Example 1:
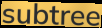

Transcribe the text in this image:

subtree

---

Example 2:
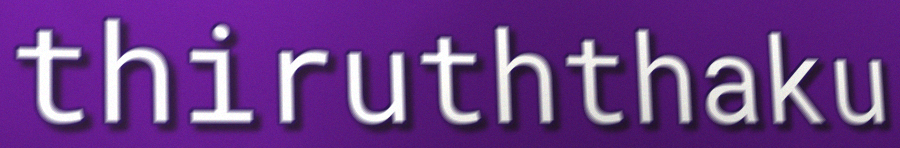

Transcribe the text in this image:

thiruththaku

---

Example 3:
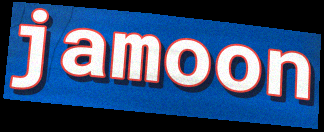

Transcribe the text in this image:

jamoon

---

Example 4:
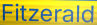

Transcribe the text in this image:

Fitzerald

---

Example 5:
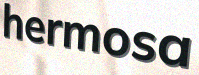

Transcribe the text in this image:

hermosa